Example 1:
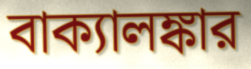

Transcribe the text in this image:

বাক্যালঙ্কার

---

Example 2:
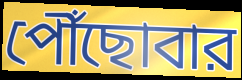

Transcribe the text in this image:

পৌঁছোবার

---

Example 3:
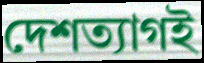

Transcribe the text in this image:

দেশত্যাগই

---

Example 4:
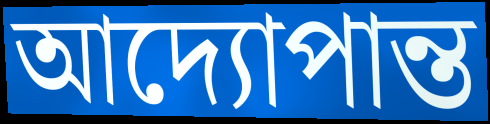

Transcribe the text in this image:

আদ্যোপান্ত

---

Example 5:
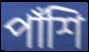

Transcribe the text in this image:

পাঁশি